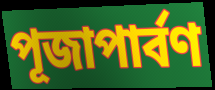
পূজাপার্বণ